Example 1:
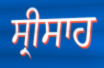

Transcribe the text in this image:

ਸ੍ਰੀਸਾਹ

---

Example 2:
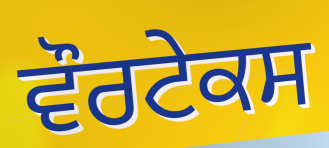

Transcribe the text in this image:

ਵੌਰਟੇਕਸ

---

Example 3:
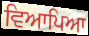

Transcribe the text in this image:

ਵਿਆਪਿਆ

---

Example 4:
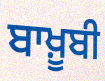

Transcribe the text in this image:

ਬਾਖ਼ੂਬੀ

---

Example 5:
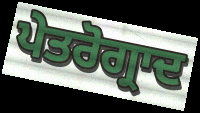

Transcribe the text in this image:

ਪੇਤਰੋਗ੍ਰਾਦ